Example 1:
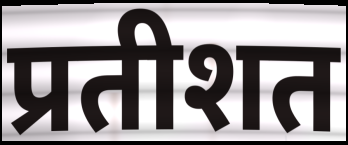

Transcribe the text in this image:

प्रतीशत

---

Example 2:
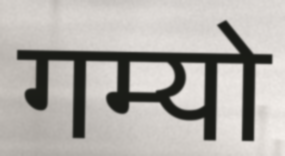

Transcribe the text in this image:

गम्यो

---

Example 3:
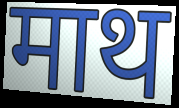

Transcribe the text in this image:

माथ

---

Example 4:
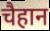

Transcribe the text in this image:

चैहान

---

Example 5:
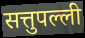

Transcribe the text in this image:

सत्तुपल्ली